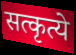
सत्कृत्ये